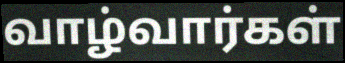
வாழ்வார்கள்